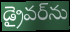
డ్రైవర్‌ను